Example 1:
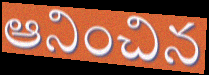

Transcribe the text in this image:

ఆనించిన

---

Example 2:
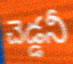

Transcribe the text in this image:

చెడ్డనీ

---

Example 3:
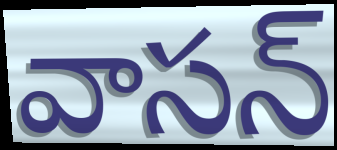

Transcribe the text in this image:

వాసన్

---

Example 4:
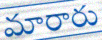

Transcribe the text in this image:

మారారు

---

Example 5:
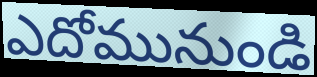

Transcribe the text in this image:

ఎదోమునుండి